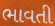
ભાવતી